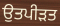
ਉਤਪੀੜਤ